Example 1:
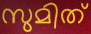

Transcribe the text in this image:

സുമിത്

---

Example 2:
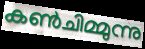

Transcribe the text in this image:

കൺചിമ്മുന്നു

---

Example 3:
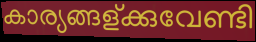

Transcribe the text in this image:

കാര്യങ്ങള്ക്കുവേണ്ടി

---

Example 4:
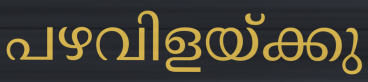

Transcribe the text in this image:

പഴവിളയ്ക്കു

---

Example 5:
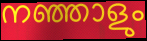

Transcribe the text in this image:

നഞ്ഞാളും